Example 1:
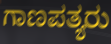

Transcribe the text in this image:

ಗಾಣಪತ್ಯರು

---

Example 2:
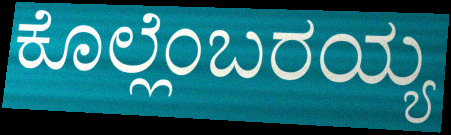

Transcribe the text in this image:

ಕೊಲ್ಲೆಂಬರಯ್ಯ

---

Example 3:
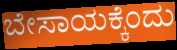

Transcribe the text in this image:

ಬೇಸಾಯಕ್ಕೆಂದು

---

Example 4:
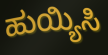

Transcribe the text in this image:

ಹುಯ್ಯಿಸಿ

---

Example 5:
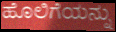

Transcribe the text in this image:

ಹೊಲಿಗೆಯನ್ನು